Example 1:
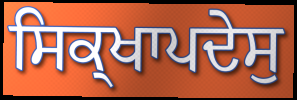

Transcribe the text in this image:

ਸਿਕ੍ਖਾਪਦੇਸੁ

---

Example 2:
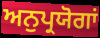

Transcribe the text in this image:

ਅਨੁਪ੍ਰਯੋਗਾਂ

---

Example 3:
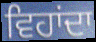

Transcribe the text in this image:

ਵਿਹਾਂਦਾ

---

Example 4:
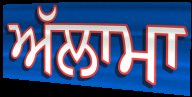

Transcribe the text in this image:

ਅੱਲਾਮਾ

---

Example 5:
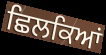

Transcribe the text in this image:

ਛਿਲਕਿਆਂ